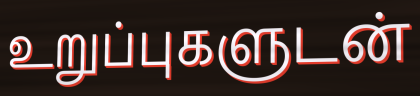
உறுப்புகளுடன்